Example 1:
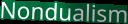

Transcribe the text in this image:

Nondualism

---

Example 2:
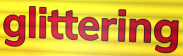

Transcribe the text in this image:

glittering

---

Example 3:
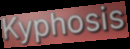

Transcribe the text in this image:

Kyphosis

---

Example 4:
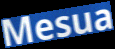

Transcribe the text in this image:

Mesua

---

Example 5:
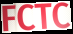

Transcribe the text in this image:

FCTC